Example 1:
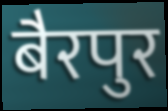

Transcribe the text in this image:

बैरपुर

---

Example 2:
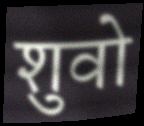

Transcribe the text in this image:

शुवो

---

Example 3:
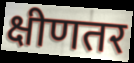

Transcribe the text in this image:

क्षीणतर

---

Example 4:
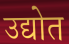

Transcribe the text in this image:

उद्योत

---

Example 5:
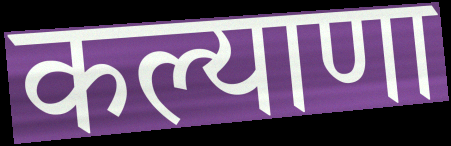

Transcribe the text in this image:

कल्याणा